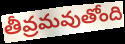
తీవ్రమవుతోంది